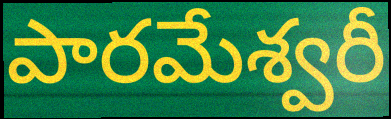
పారమేశ్వరీ